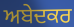
ਅਬੇਦਕਰ